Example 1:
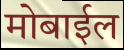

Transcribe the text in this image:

मोबाईल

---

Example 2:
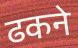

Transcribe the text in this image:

ढकने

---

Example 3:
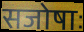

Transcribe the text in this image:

सजोषाः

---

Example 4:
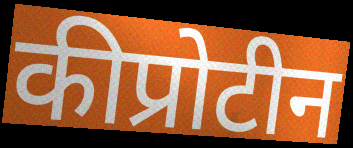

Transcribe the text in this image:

कीप्रोटीन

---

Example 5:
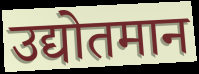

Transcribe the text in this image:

उद्योतमान